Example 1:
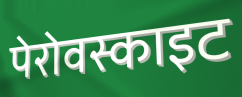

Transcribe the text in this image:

पेरोवस्काइट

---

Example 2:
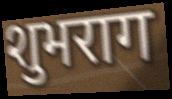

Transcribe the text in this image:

शुभराग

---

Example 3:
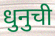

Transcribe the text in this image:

धुनुची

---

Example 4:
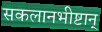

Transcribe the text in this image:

सकलानभीष्टान्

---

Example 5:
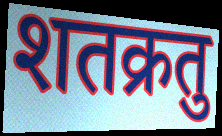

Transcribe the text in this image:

शतक्रतु